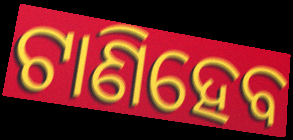
ଟାଣିହେବ